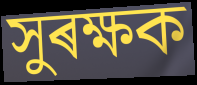
সুৰক্ষক